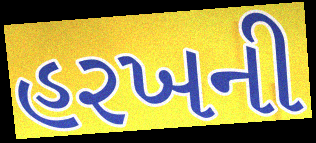
હરખની